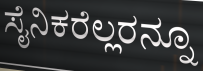
ಸೈನಿಕರೆಲ್ಲರನ್ನೂ